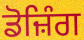
ਡੋਜ਼ਿੰਗ